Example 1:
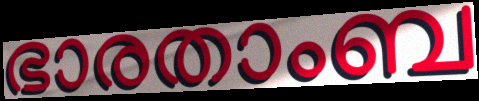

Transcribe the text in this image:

ഭാരതാംബ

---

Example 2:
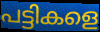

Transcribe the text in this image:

പട്ടികളെ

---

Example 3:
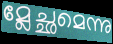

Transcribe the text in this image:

മ്ലേച്ഛമെന്നു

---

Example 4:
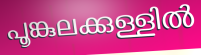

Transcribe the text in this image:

പൂങ്കുലക്കുള്ളിൽ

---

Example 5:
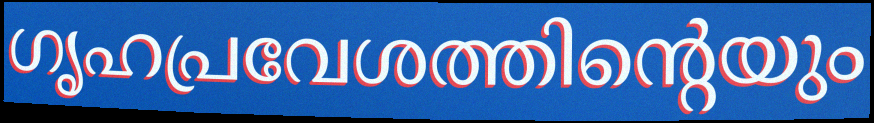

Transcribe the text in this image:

ഗൃഹപ്രവേശത്തിന്റെയും